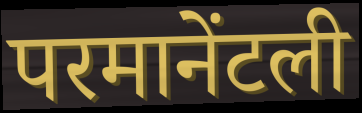
परमानेंटली